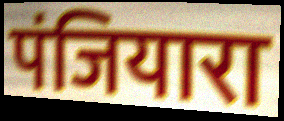
पंजियारा